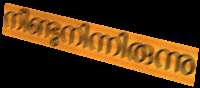
നീണ്ടുനിന്നിരുന്നു